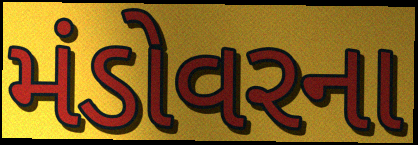
મંડોવરના